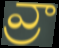
వ్రా